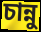
চান্নু